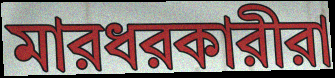
মারধরকারীরা